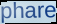
phare